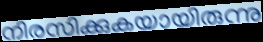
നിരസിക്കുകയായിരുന്നു